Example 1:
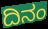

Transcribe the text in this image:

ದಿನಂ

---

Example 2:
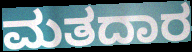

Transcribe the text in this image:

ಮತದಾರ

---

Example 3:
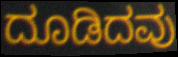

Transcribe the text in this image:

ದೂಡಿದವು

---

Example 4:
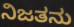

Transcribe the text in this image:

ನಿಜತನು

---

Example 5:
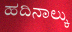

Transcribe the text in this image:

ಹದಿನಾಲ್ಕು